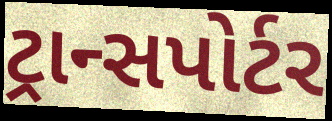
ટ્રાન્સપોર્ટર